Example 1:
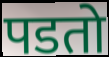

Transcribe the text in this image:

पडतो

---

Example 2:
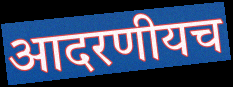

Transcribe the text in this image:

आदरणीयच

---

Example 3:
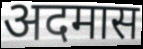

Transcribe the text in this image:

अदमास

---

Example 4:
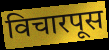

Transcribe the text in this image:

विचारपूस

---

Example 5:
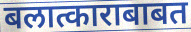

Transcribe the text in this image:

बलात्काराबाबत